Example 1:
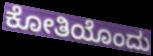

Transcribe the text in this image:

ಕೋತಿಯೊಂದು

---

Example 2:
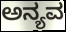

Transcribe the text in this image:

ಅನ್ಯವ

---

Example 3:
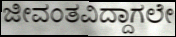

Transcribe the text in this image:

ಜೀವಂತವಿದ್ದಾಗಲೇ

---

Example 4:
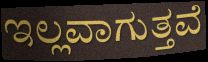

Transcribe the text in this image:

ಇಲ್ಲವಾಗುತ್ತವೆ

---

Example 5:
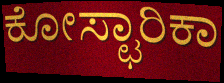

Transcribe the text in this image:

ಕೋಸ್ಟಾರಿಕಾ